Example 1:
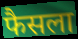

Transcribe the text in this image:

फैसला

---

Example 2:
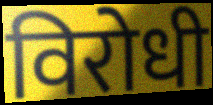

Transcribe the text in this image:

विरोधी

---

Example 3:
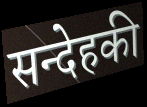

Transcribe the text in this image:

सन्देहकी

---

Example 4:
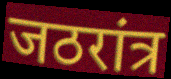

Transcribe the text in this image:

जठरांत्र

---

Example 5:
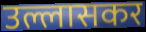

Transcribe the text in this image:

उल्लासकर